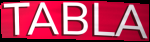
TABLA